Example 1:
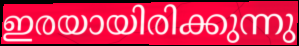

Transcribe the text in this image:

ഇരയായിരിക്കുന്നു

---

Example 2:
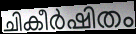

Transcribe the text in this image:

ചികീർഷിതം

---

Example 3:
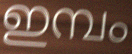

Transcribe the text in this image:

ഇമ്പം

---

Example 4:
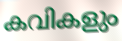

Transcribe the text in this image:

കവികളും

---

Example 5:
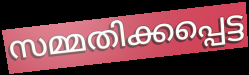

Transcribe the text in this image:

സമ്മതിക്കപ്പെട്ട